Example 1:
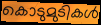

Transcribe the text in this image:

കൊടുമുടികൾ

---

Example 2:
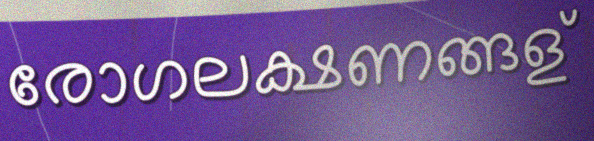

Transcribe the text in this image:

രോഗലക്ഷണങ്ങള്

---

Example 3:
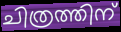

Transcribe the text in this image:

ചിത്രത്തിന്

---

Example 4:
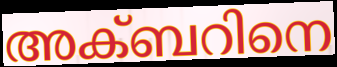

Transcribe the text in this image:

അക്ബറിനെ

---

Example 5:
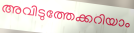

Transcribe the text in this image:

അവിടുത്തേക്കറിയാം